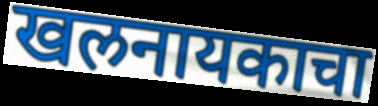
खलनायकाचा